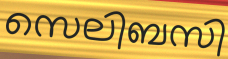
സെലിബസി